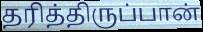
தரித்திருப்பான்